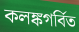
কলঙ্কগর্বিত